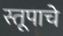
स्तूपाचे